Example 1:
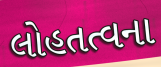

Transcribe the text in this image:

લોહતત્વના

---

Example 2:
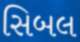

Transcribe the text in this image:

સિબલ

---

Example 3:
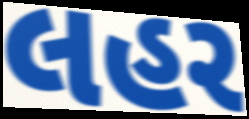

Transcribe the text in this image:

લહર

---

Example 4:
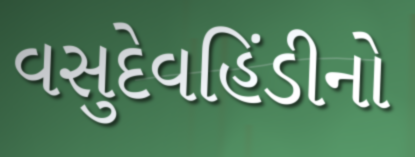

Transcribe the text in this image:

વસુદેવહિંડીનો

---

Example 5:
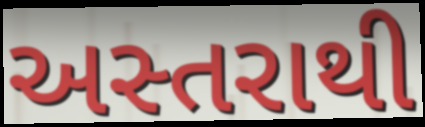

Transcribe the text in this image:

અસ્તરાથી